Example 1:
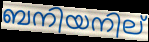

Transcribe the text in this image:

ബനിയനില്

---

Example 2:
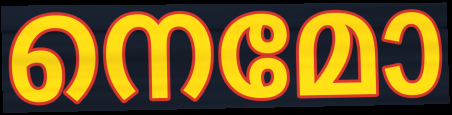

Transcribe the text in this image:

നെമോ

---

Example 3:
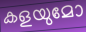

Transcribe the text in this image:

കളയുമോ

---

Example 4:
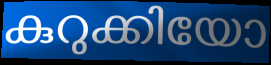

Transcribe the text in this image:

കുറുക്കിയോ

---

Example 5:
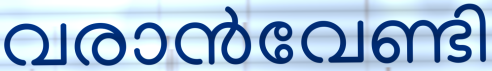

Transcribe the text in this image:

വരാൻവേണ്ടി